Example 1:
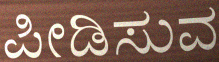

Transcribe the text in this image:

ಪೀಡಿಸುವ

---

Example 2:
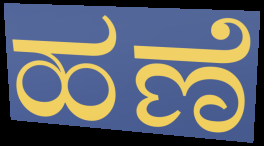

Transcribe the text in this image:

ಹಣೆ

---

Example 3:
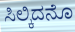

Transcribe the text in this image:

ಸಿಲ್ಕಿದನೊ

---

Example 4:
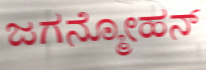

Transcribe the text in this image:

ಜಗನ್ಮೋಹನ್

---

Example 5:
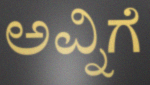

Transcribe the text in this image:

ಅವ್ನಿಗೆ